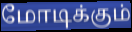
மோடிக்கும்